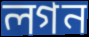
লগন